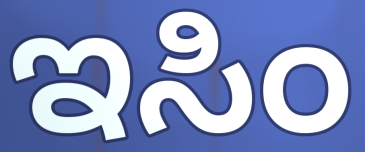
ಇಸಿಂ